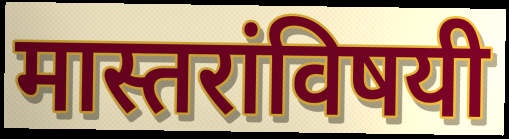
मास्तरांविषयी